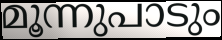
മൂന്നുപാടും